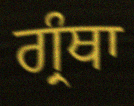
ਗ੍ਰੰਥਾ